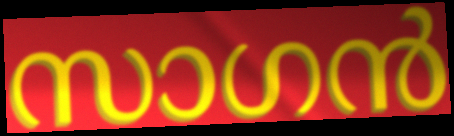
സാഗൻ